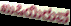
ಖುಷಿಯಿರುವ